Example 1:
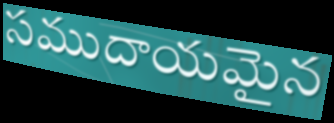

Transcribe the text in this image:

సముదాయమైన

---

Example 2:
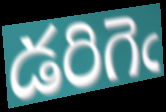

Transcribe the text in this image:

డరిగెఁ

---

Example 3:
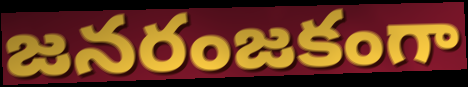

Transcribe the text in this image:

జనరంజకంగా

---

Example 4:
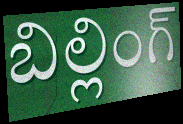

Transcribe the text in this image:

బిల్లింగ్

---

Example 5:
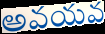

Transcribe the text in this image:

అవయవ